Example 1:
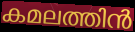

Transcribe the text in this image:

കമലത്തിൻ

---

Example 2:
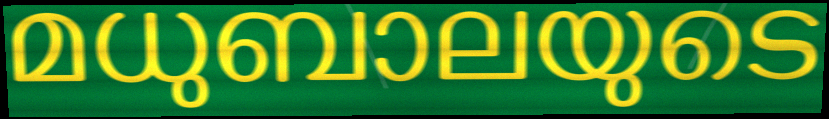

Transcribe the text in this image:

മധുബാലയുടെ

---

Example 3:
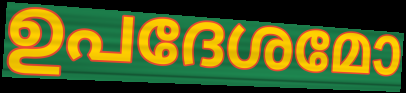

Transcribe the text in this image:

ഉപദേശമോ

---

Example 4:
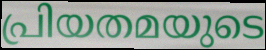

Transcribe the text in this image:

പ്രിയതമയുടെ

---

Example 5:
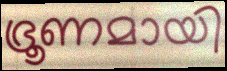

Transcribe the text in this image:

ഭ്രൂണമായി